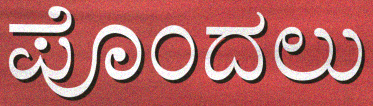
ಪೊಂದಲು